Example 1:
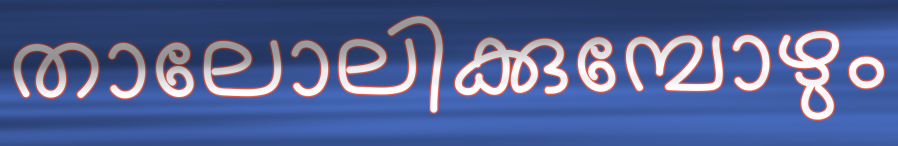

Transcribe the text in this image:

താലോലിക്കുമ്പോഴും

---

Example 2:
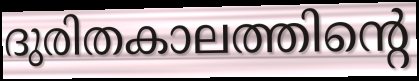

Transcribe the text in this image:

ദുരിതകാലത്തിന്റെ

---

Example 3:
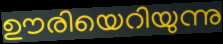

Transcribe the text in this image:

ഊരിയെറിയുന്നു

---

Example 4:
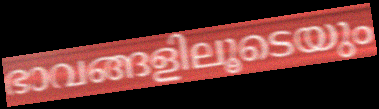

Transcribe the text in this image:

ഭാവങ്ങളിലൂടെയും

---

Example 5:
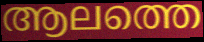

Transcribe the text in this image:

ആലത്തെ